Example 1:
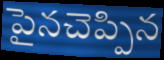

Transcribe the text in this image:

పైనచెప్పిన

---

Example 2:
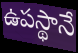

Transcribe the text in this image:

ఉపస్థానే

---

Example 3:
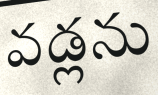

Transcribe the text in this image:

వడ్లను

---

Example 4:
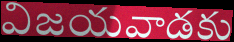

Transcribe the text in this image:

విజయవాడకు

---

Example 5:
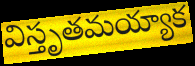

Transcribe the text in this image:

విస్తృతమయ్యాక